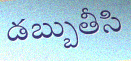
డబ్బుతీసి